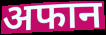
अफान